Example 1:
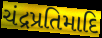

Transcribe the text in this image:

ચંદ્રપ્રતિમાદિ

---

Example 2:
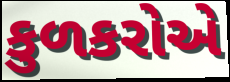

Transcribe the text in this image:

કુળકરોએ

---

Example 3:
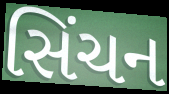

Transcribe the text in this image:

સિંચન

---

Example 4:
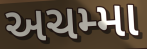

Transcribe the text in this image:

અચમ્મા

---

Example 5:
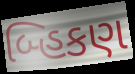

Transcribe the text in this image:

બ્હિકણ